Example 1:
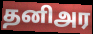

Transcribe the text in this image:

தனிஅர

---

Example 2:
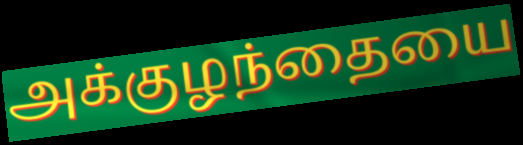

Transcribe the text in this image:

அக்குழந்தையை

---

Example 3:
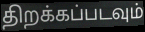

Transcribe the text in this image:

திறக்கப்படவும்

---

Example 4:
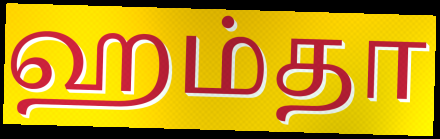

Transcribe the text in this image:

ஹம்தா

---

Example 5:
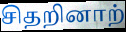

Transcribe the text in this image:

சிதறினாற்